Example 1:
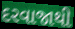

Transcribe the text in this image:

દરવાજાથી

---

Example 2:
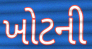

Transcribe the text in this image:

ખોટની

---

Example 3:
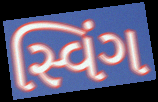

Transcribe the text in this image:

સ્વિંગ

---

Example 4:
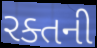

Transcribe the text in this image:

રક્તની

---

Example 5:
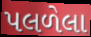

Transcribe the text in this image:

પલળેલા